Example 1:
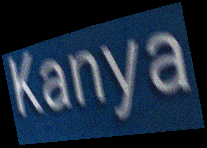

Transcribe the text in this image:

Kanya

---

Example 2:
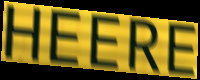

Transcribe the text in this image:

HEERE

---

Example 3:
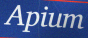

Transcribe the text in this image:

Apium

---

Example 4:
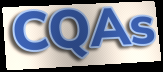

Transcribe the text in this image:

CQAs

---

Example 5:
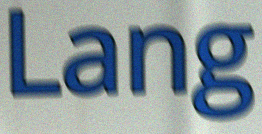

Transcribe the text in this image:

Lang